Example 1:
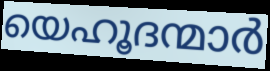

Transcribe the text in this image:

യെഹൂദന്മാർ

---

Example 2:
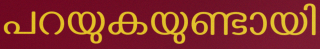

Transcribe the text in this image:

പറയുകയുണ്ടായി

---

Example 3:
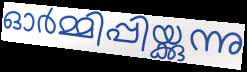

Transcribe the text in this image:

ഓർമ്മിപ്പിയ്ക്കുന്നു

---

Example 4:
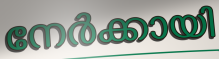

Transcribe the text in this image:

നേർക്കായി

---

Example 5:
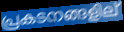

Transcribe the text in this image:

പ്രകടനങ്ങളില്